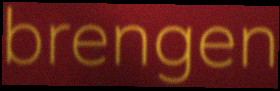
brengen